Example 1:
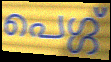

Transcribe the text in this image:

പെഗ്ഗ്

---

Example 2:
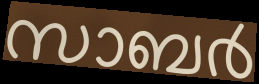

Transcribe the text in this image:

സാബർ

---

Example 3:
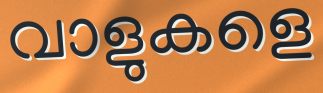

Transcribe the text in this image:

വാളുകളെ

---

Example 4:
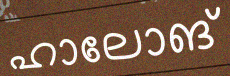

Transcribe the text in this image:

ഹാലോങ്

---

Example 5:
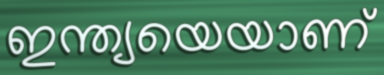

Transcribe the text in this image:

ഇന്ത്യയെയാണ്